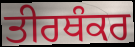
ਤੀਰਥੰਕਰ